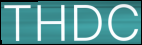
THDC